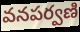
వనపర్వణి